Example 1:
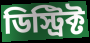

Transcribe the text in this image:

ডিস্ট্রিক্ট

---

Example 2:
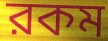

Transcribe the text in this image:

রকম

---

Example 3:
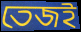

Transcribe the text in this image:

তেজই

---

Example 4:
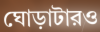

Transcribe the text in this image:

ঘোড়াটারও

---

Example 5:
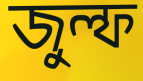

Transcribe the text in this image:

জুল্ফ